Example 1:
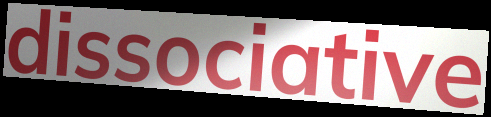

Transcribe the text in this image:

dissociative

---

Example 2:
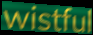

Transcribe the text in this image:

wistful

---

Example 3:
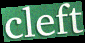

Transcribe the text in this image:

cleft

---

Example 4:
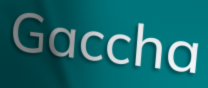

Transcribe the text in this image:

Gaccha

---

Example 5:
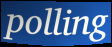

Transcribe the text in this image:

polling